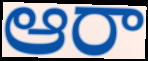
ఆరా